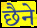
छैने